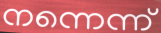
നന്നെന്ന്